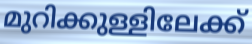
മുറിക്കുള്ളിലേക്ക്